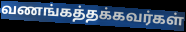
வணங்கத்தக்கவர்கள்